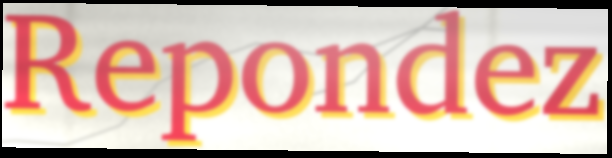
Repondez